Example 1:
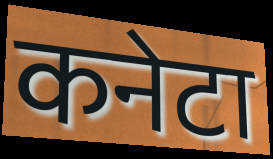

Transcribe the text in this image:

कनेटा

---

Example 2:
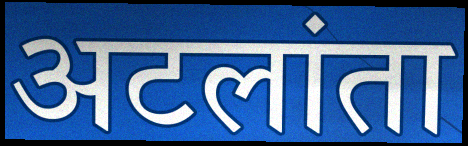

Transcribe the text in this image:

अटलांता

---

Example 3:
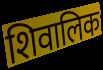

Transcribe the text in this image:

शिवालिक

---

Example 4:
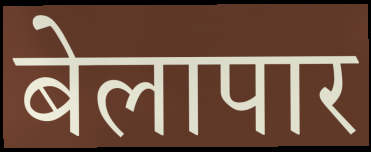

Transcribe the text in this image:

बेलापार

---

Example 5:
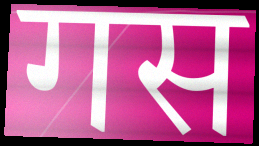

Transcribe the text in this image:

गस